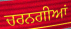
ਚਰਨਗੀਆਂ